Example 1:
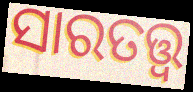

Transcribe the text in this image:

ସାରତତ୍ତ୍ୱ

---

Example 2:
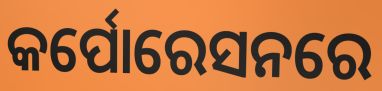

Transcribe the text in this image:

କର୍ପୋରେସନରେ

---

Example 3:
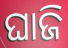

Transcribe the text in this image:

ଘାଜି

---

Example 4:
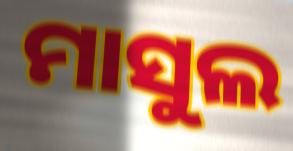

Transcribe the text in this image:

ମାସୁଲ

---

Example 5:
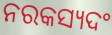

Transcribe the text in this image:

ନରକସ୍ୟଦଂ